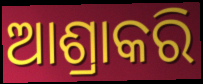
ଆଶ୍ରାକରି